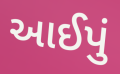
આઈપું